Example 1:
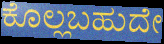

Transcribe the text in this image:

ಕೊಲ್ಲಬಹುದೇ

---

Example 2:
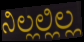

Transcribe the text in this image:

ನಿಲ್ಲಲ್ಲಿಲ್ಲ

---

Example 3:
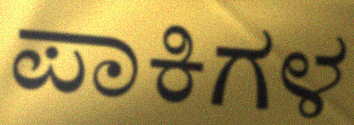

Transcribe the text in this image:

ಪಾಕಿಗಳ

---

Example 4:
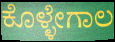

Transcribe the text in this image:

ಕೊಳ್ಳೇಗಾಲ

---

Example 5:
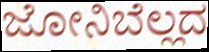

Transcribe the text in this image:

ಜೋನಿಬೆಲ್ಲದ